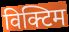
विक्टिम